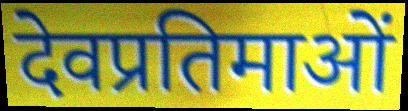
देवप्रतिमाओं